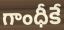
గాంధీకే